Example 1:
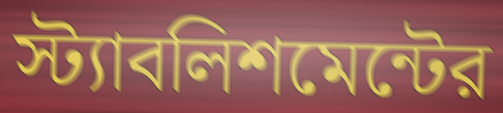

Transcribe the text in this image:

স্ট্যাবলিশমেন্টের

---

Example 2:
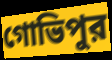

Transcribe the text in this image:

গোভিপুর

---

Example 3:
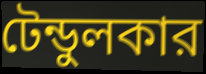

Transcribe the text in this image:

টেন্ডুলকার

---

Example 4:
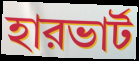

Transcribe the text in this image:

হারভার্ট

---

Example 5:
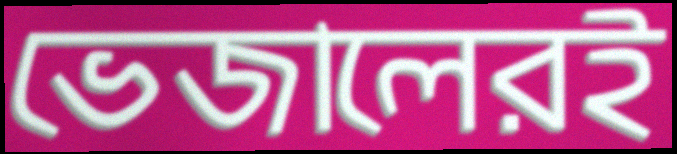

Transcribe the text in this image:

ভেজালেরই